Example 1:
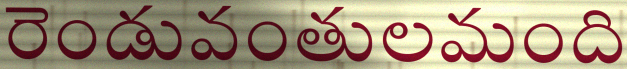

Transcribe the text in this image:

రెండువంతులమంది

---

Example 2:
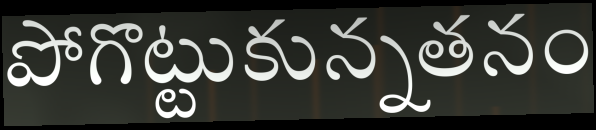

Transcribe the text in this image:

పోగొట్టుకున్నతనం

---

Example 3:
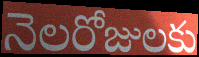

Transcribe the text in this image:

నెలరోజులకు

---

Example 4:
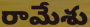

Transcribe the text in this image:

రామేశు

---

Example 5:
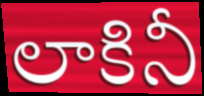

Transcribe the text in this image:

లాకినీ